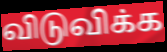
விடுவிக்க